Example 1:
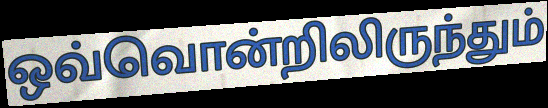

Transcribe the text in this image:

ஒவ்வொன்றிலிருந்தும்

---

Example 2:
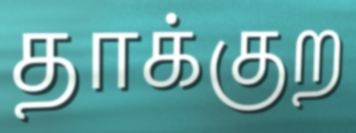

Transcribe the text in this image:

தாக்குற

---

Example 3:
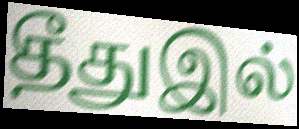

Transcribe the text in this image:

தீதுஇல்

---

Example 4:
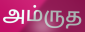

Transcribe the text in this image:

அம்ருத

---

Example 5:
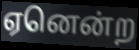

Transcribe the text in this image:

ஏனென்ற